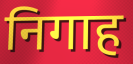
निगाह